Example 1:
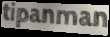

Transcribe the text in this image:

tipanman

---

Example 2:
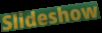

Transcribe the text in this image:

Slideshow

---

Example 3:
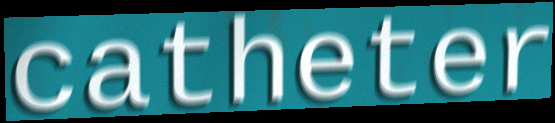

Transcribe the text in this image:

catheter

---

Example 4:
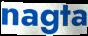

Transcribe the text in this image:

nagta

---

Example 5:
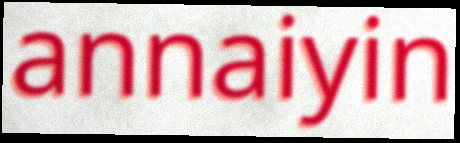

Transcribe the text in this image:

annaiyin